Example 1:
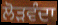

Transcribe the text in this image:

ਲੋੜਵੰਦਾ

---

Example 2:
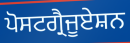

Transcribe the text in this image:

ਪੋਸਟਗ੍ਰੈਜੂਏਸ਼ਨ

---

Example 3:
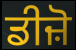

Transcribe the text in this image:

ਡੀਜ਼ੋ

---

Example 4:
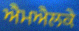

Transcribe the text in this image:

ਐਮਐਲਕੇ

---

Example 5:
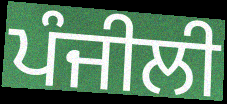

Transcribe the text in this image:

ਪੰਜੀਲੀ